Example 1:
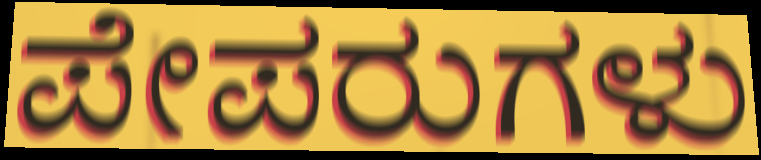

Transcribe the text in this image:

ಪೇಪರುಗಳು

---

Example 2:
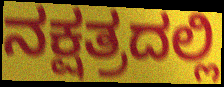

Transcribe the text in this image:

ನಕ್ಷತ್ರದಲ್ಲಿ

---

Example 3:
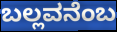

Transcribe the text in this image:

ಬಲ್ಲವನೆಂಬ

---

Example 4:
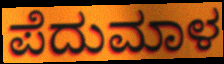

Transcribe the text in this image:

ಪೆದುಮಾಳ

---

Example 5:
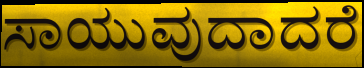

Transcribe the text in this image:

ಸಾಯುವುದಾದರೆ